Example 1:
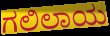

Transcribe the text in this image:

ಗಲಿಲಾಯ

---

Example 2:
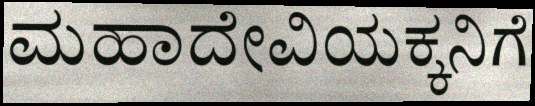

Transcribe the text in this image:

ಮಹಾದೇವಿಯಕ್ಕನಿಗೆ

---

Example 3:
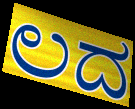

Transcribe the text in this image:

ಲದ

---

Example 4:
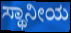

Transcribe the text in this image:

ಸ್ಥಾನೀಯ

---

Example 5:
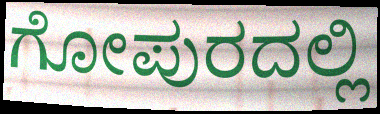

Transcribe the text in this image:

ಗೋಪುರದಲ್ಲಿ